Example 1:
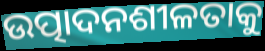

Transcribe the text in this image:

ଉତ୍ପାଦନଶୀଳତାକୁ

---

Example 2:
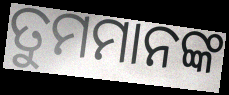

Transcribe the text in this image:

ତୁମମାନଙ୍କ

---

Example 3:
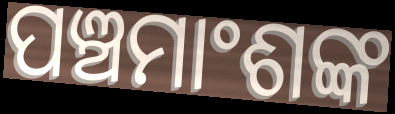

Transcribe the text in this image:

ପଞ୍ଚମାଂଶଙ୍କ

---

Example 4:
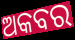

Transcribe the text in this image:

ଅକବର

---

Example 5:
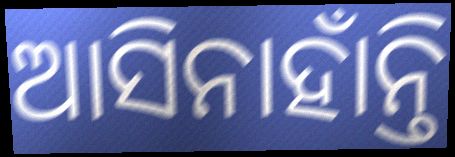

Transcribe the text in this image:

ଆସିନାହାଁନ୍ତି